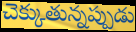
చెక్కుతున్నప్పుడు